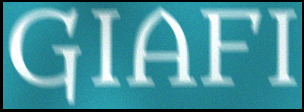
GIAFI